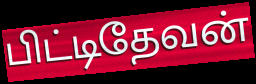
பிட்டிதேவன்